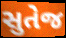
સુતેજ